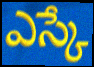
ఎస్కే